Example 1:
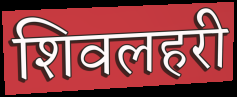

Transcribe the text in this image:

शिवलहरी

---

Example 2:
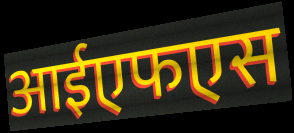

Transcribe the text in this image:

आईएफएस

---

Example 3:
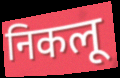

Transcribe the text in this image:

निकलू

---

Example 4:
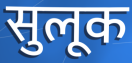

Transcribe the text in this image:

सुलूक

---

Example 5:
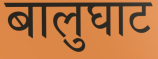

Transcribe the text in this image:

बालुघाट